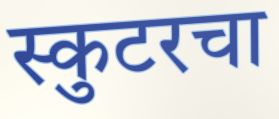
स्कुटरचा